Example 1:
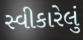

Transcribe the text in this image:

સ્વીકારેલું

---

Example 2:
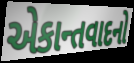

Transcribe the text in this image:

એકાન્તવાદનો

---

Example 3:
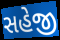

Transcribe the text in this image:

સહેજી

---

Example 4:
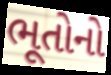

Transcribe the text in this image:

ભૂતોનો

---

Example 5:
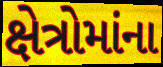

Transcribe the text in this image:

ક્ષેત્રોમાંના